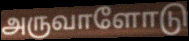
அருவாளோடு